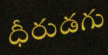
ధీరుడగు